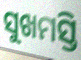
ସୁଖମସ୍ତି